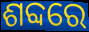
ଶବ୍ଦରେ